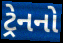
ટ્રેનનો